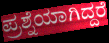
ಪ್ರಶ್ನೆಯಾಗಿದ್ದರೆ